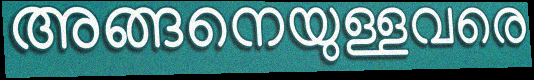
അങ്ങനെയുള്ളവരെ